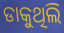
ଡାକୁଥିଲି